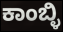
ಕಾಂಬ್ಳಿ